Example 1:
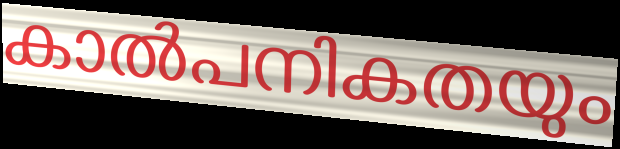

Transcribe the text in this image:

കാൽപനികതയും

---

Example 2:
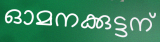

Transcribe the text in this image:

ഓമനക്കുട്ടന്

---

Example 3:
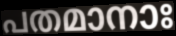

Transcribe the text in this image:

പതമാനാഃ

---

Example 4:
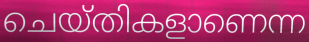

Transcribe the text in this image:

ചെയ്തികളാണെന്ന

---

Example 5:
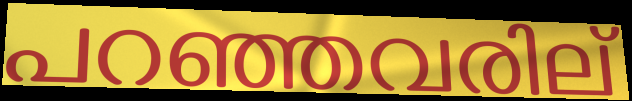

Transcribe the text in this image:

പറഞ്ഞവരില്